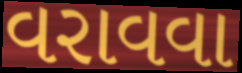
વરાવવા